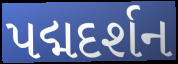
પદ્મદર્શન